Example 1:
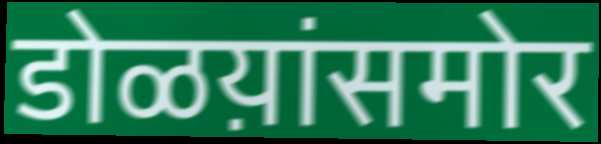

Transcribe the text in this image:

डोळय़ांसमोर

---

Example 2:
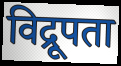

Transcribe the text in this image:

विद्रूपता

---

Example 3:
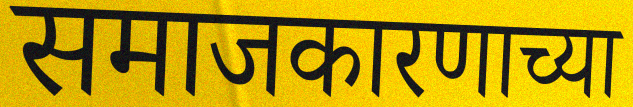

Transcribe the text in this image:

समाजकारणाच्या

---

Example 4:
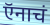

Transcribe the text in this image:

ऍनाचं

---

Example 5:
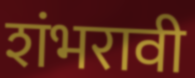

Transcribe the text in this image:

शंभरावी